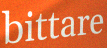
bittare